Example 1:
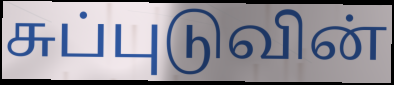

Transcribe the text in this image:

சுப்புடுவின்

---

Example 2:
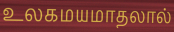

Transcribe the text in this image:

உலகமயமாதலால்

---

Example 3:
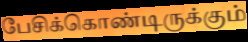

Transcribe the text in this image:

பேசிக்கொண்டிருக்கும்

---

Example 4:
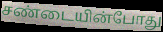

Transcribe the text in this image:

சண்டையின்போது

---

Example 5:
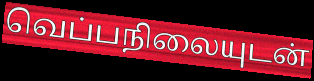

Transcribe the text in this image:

வெப்பநிலையுடன்